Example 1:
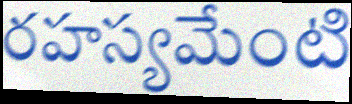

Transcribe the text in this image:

రహస్యమేంటి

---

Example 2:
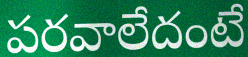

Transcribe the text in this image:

పరవాలేదంటే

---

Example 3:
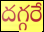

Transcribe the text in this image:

దగ్గరే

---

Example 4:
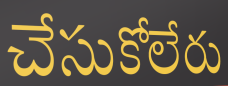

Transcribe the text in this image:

చేసుకోలేరు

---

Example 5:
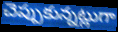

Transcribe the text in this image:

చెప్పుకున్నట్లుగా